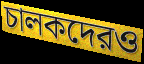
চালকদেরও